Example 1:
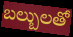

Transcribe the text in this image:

బల్బులతో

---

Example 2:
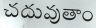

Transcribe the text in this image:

చదువుతాం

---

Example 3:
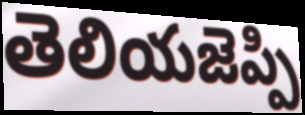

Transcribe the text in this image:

తెలియజెప్పి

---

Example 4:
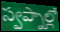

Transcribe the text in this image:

స్వప్నాల్లో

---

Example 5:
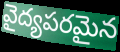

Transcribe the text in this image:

వైద్యపరమైన